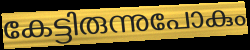
കേട്ടിരുന്നുപോകും